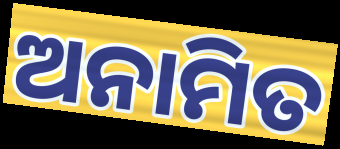
ଅନାମିତ